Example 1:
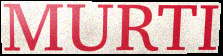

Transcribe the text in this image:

MURTI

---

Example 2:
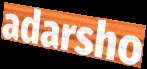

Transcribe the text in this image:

adarsho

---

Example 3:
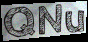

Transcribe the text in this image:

QNu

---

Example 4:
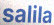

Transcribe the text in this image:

salila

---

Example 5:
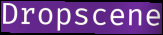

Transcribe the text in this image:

Dropscene